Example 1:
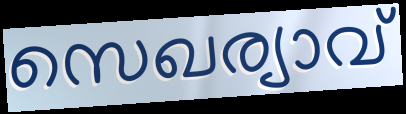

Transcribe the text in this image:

സെഖര്യാവ്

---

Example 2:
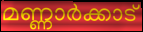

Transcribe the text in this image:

മണ്ണാർക്കാട്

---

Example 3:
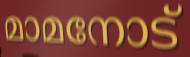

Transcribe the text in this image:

മാമനോട്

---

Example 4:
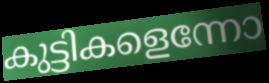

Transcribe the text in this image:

കുട്ടികളെന്നോ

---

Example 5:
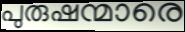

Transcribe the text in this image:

പുരുഷന്മാരെ